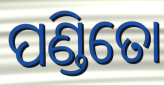
ପଣ୍ଡିତୋ